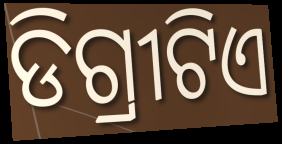
ଡିଗ୍ରୀଟିଏ